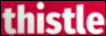
thistle